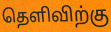
தெளிவிற்கு